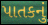
પાતકનું